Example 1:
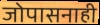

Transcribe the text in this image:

जोपासनाही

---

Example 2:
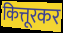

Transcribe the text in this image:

कित्तूरकर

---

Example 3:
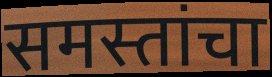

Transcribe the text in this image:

समस्तांचा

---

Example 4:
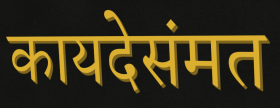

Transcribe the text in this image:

कायदेसंमत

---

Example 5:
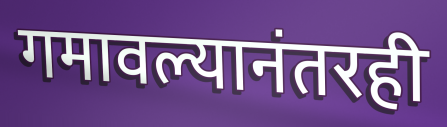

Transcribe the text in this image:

गमावल्यानंतरही